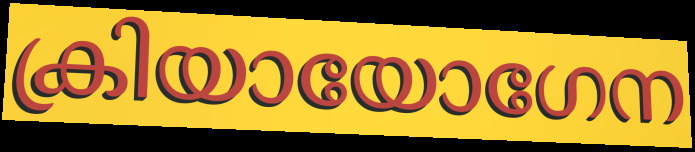
ക്രിയായോഗേന